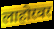
लाहोरवर